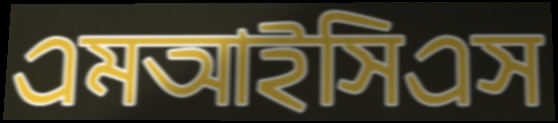
এমআইসিএস